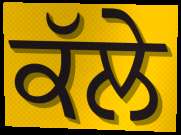
ਕੱਲੇ